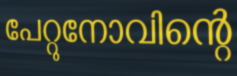
പേറ്റുനോവിന്റെ